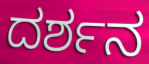
ದರ್ಶನ